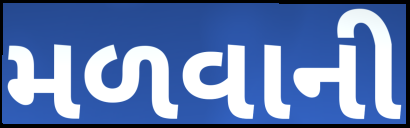
મળવાની